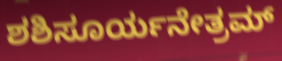
ಶಶಿಸೂರ್ಯನೇತ್ರಮ್